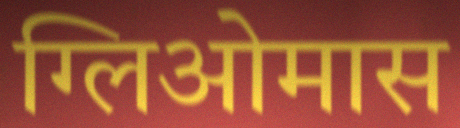
ग्लिओमास